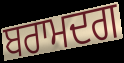
ਬਰਾਮਦਗ